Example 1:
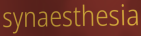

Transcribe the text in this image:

synaesthesia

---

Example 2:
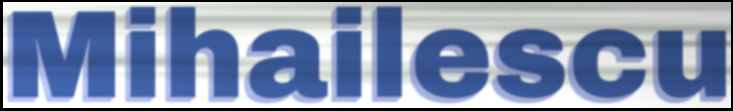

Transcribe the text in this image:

Mihailescu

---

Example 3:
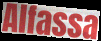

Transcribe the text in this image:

Alfassa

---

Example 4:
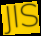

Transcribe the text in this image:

JIS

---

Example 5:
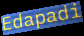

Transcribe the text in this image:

Edapadi